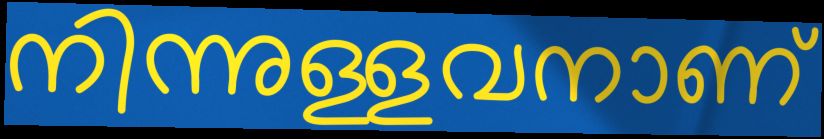
നിന്നുള്ളവനാണ്